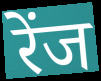
रेंज